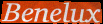
Benelux